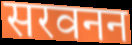
सरवनन